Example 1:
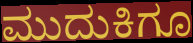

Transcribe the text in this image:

ಮುದುಕಿಗೂ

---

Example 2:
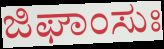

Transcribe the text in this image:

ಜಿಘಾಂಸುಃ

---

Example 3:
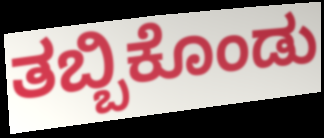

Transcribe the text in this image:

ತಬ್ಬಿಕೊಂಡು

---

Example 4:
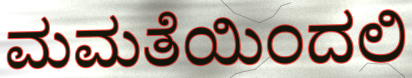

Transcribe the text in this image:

ಮಮತೆಯಿಂದಲಿ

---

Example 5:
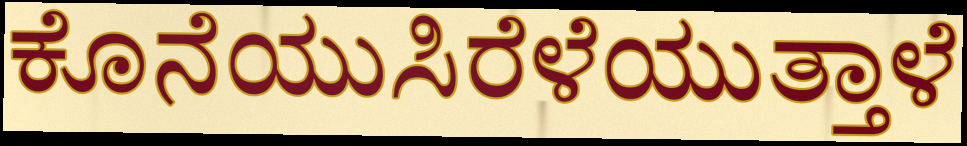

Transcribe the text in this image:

ಕೊನೆಯುಸಿರೆಳೆಯುತ್ತಾಳೆ